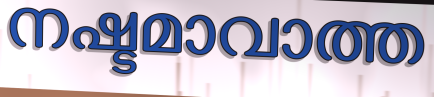
നഷ്ടമാവാത്ത